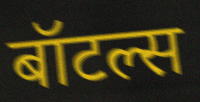
बॉटल्स